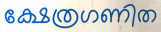
ക്ഷേത്രഗണിത